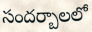
సందర్బాలలో